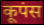
कूपंस